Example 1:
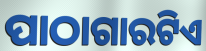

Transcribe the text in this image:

ପାଠାଗାରଟିଏ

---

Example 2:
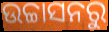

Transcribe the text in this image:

ଉଚ୍ଚାସନରୁ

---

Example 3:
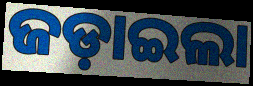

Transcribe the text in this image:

ଜଡ଼ାଇଲା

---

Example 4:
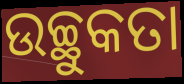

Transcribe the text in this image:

ଉଚ୍ଛୁକତା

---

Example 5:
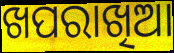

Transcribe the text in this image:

ଖପରାଖିଆ